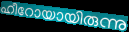
ഹീറോയായിരുന്നു